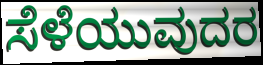
ಸೆಳೆಯುವುದರ